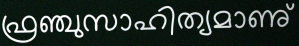
ഫ്രഞ്ചുസാഹിത്യമാണു്